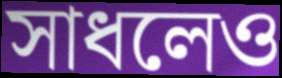
সাধলেও